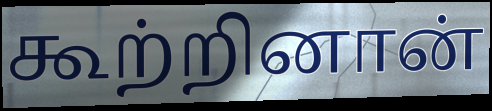
கூற்றினான்